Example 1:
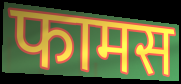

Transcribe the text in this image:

फामस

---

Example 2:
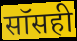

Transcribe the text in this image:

सॉसही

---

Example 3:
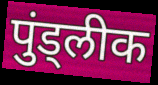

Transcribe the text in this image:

पुंड्लीक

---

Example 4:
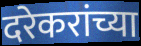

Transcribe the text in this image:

दरेकरांच्या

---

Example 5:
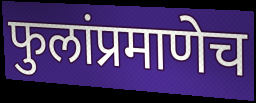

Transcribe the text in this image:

फुलांप्रमाणेच